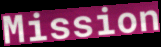
Mission